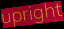
upright